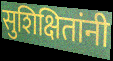
सुशिक्षितांनी